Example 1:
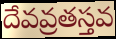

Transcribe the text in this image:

దేవవ్రతస్తవ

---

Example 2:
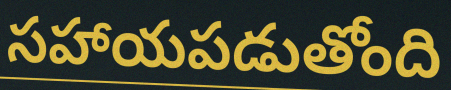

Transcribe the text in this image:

సహాయపడుతోంది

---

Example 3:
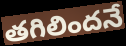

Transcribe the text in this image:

తగిలిందనే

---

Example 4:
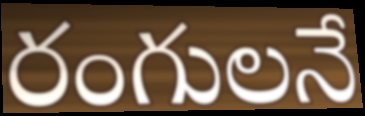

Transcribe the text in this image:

రంగులనే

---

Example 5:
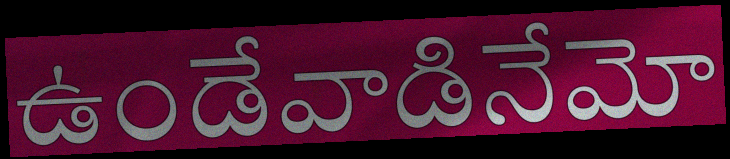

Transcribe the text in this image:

ఉండేవాడినేమో